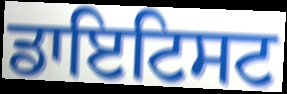
ਡਾਇਟਿਸਟ